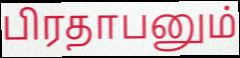
பிரதாபனும்